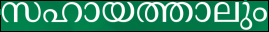
സഹായത്താലും